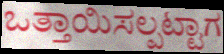
ಒತ್ತಾಯಿಸಲ್ಪಟ್ಟಾಗ